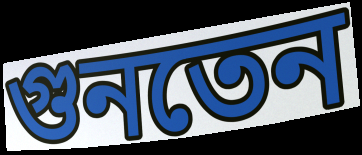
গুনতেন